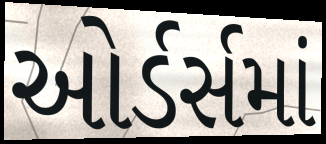
ઓર્ડર્સમાં